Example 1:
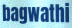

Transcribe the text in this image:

bagwathi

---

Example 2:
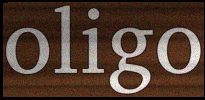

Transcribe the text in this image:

oligo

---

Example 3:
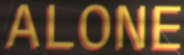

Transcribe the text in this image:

ALONE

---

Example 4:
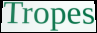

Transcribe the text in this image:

Tropes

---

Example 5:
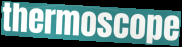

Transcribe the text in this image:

thermoscope